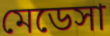
মেডেসা